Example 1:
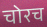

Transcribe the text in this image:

चोरच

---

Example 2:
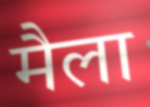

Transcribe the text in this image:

मैला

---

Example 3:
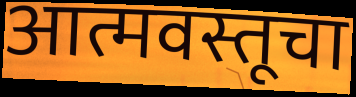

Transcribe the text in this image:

आत्मवस्तूचा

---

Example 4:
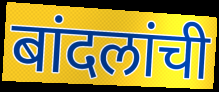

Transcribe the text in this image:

बांदलांची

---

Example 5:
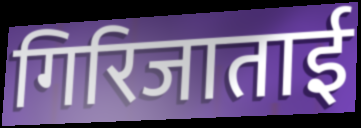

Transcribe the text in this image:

गिरिजाताई